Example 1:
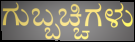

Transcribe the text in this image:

ಗುಬ್ಬಚ್ಚಿಗಳು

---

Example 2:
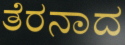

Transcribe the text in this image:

ತೆರನಾದ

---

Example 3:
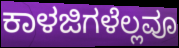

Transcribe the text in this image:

ಕಾಳಜಿಗಳೆಲ್ಲವೂ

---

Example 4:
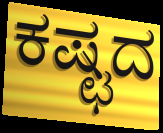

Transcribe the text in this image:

ಕಷ್ಟದ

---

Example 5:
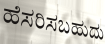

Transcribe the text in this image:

ಹೆಸರಿಸಬಹುದು